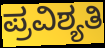
ಪ್ರವಿಶ್ಯತಿ